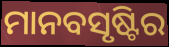
ମାନବସୃଷ୍ଟିର